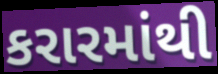
કરારમાંથી